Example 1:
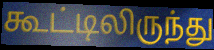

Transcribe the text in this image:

கூட்டிலிருந்து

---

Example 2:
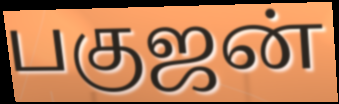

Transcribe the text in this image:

பகுஜன்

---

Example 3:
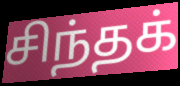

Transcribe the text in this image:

சிந்தக்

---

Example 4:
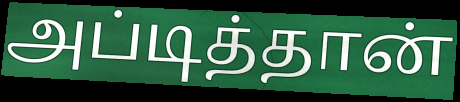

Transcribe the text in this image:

அப்டித்தான்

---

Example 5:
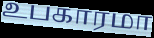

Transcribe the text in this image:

உபகாரமா